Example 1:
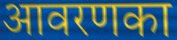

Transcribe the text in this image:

आवरणका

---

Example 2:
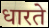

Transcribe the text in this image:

धारते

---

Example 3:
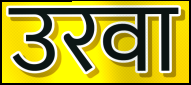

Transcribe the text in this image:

उरवा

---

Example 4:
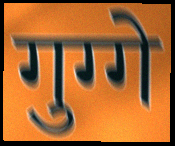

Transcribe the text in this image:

गुग्गे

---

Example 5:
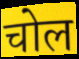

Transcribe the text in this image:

चोल